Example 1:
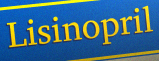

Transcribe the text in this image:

Lisinopril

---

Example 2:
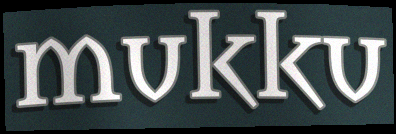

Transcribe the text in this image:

mukku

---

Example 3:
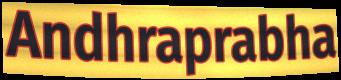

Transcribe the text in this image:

Andhraprabha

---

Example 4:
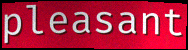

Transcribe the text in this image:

pleasant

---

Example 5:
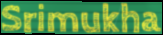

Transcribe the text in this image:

Srimukha